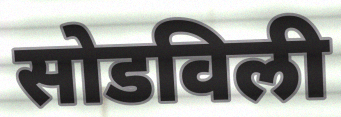
सोडविली